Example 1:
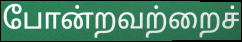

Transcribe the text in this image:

போன்றவற்றைச்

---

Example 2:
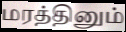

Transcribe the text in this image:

மரத்தினும்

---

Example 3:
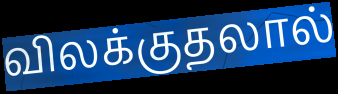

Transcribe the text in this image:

விலக்குதலால்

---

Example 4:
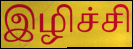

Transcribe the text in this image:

இழிச்சி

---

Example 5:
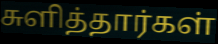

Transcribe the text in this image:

சுளித்தார்கள்